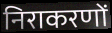
निराकरणों